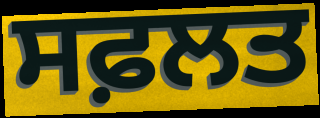
ਸਫ਼ਲਤ